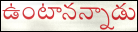
ఉంటానన్నాడు